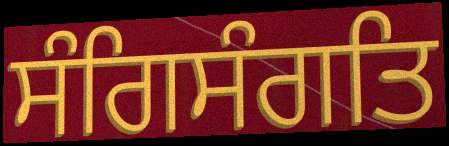
ਸੰਗਿਸੰਗਤਿ